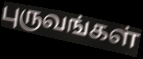
புருவங்கள்